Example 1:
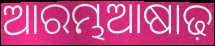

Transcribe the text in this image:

ଆରମ୍ଭଆଷାଢ଼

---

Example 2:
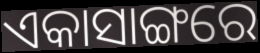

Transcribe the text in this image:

ଏକାସାଙ୍ଗରେ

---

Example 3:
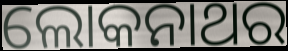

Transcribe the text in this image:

ଲୋକନାଥର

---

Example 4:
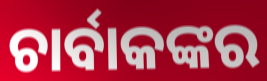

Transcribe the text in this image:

ଚାର୍ବାକଙ୍କର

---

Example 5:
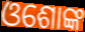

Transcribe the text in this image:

ଓଶୋଙ୍କ